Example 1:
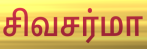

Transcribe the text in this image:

சிவசர்மா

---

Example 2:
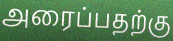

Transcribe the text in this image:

அரைப்பதற்கு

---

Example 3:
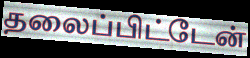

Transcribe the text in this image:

தலைப்பிட்டேன்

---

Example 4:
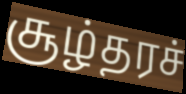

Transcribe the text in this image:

சூழ்தரச்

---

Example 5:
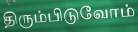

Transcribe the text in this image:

திரும்பிடுவோம்